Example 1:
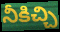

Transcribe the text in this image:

నీకిచ్చి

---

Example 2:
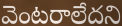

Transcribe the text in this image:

వెంటరాలేదని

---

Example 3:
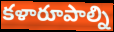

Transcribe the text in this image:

కళారూపాల్ని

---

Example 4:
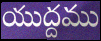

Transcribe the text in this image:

యుద్దము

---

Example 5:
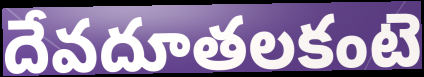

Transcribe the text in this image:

దేవదూతలకంటె